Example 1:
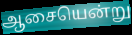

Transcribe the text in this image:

ஆசையென்று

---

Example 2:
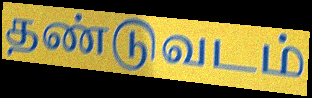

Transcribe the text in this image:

தண்டுவடம்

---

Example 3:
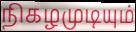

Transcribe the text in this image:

நிகழமுடியும்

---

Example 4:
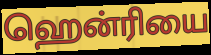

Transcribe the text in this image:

ஹென்ரியை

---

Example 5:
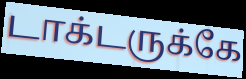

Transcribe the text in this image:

டாக்டருக்கே